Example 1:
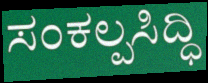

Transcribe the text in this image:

ಸಂಕಲ್ಪಸಿದ್ಧಿ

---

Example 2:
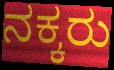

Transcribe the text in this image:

ನಕ್ಕರು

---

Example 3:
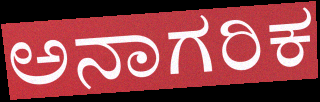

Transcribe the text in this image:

ಅನಾಗರಿಕ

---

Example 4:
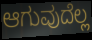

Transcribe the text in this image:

ಆಗುವುದೆಲ್ಲ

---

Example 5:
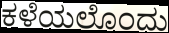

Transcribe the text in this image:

ಕಳೆಯಲೊಂದು